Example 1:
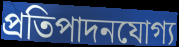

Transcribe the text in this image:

প্রতিপাদনযোগ্য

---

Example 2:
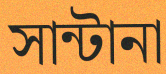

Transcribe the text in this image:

সান্টানা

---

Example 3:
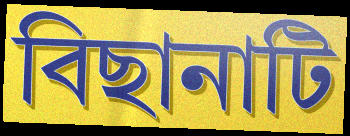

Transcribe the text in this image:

বিছানাটি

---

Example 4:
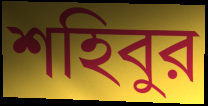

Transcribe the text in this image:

শহিবুর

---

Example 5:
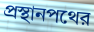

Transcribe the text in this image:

প্রস্থানপথের